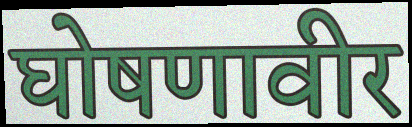
घोषणावीर